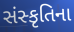
સંસ્કૃતિના